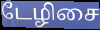
டேழிசை